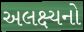
અલક્ષ્યનો